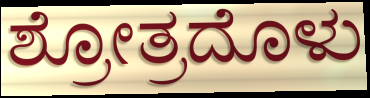
ಶ್ರೋತ್ರದೊಳು